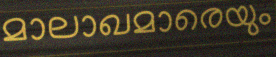
മാലാഖമാരെയും